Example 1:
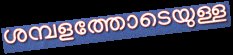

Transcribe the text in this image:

ശമ്പളത്തോടെയുള്ള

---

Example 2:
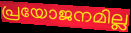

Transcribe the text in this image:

പ്രയോജനമില്ല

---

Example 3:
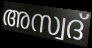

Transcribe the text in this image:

അസ്വദ്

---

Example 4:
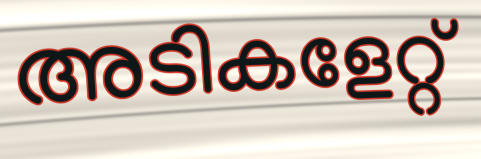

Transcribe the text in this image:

അടികളേറ്റ്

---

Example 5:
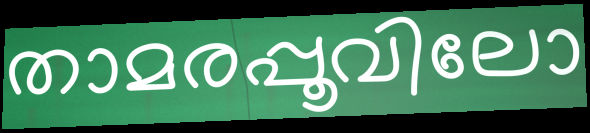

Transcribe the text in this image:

താമരപ്പൂവിലോ